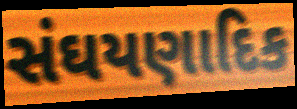
સંઘયણાદિક